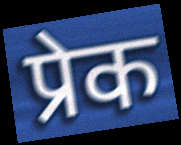
प्रेक